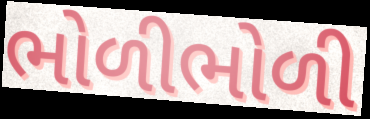
ભોળીભોળી